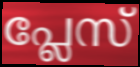
പ്ലേസ്